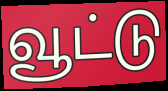
வூட்டு